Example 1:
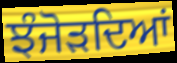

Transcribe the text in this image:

ਝੰਜੋੜਦਿਆਂ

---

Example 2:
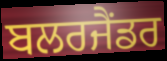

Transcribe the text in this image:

ਬਲਰਜੈਂਡਰ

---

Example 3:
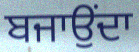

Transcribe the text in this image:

ਬਜਾਉਂਦਾ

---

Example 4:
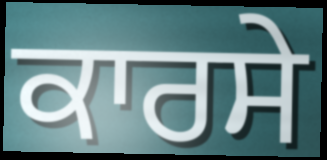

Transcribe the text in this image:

ਕਾਰਸੇ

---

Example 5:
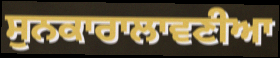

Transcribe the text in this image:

ਸੁਨਕਾਰਾਲਾਵਣੀਆ